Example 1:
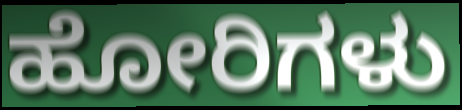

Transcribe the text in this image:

ಹೋರಿಗಳು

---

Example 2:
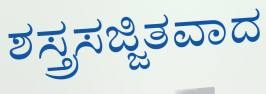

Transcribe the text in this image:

ಶಸ್ತ್ರಸಜ್ಜಿತವಾದ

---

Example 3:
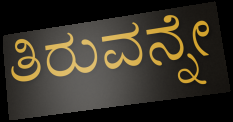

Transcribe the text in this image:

ತಿರುವನ್ನೇ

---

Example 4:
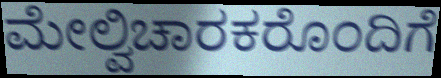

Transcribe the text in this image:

ಮೇಲ್ವಿಚಾರಕರೊಂದಿಗೆ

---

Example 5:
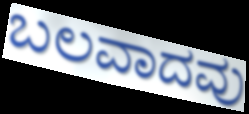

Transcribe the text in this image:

ಬಲವಾದವು